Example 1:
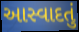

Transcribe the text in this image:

આસ્વાદતું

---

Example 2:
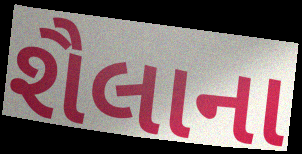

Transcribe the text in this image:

શૈલાના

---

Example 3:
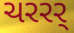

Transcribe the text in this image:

ચરરર્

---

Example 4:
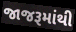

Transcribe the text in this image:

જાજરૂમાંથી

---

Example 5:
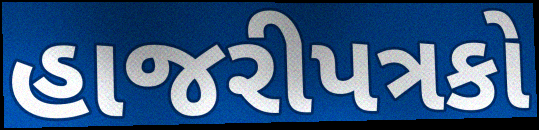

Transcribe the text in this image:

હાજરીપત્રકો